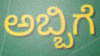
ಅಬ್ಬಿಗೆ